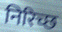
निरिच्छ